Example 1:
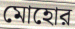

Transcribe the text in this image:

মোহোর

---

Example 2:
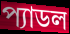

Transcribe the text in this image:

প্যাডল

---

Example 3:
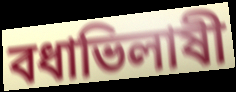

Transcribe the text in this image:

বধাভিলাষী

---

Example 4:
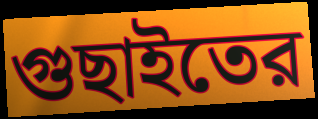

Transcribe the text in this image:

গুছাইতের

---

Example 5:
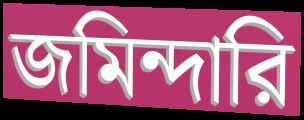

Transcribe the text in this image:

জমিন্দারি